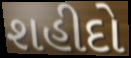
શહીદો